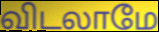
விடலாமே